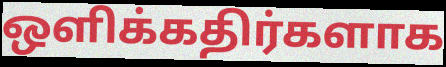
ஒளிக்கதிர்களாக